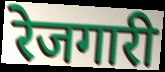
रेजगारी